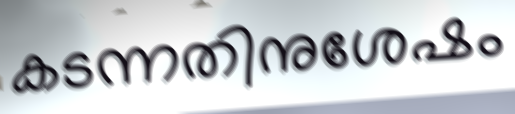
കടന്നതിനുശേഷം